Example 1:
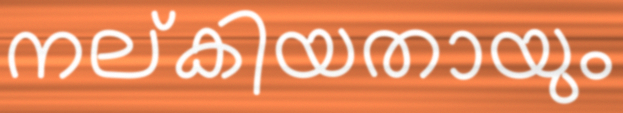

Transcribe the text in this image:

നല്കിയതായും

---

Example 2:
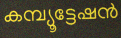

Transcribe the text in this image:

കമ്പ്യൂട്ടേഷൻ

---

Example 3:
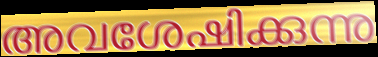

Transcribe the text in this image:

അവശേഷിക്കുന്നു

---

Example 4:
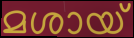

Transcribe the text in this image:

മശായ്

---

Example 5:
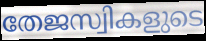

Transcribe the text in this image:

തേജസ്വികളുടെ